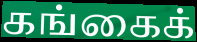
கங்கைக்